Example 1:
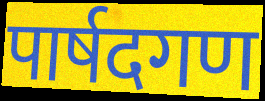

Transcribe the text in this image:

पार्षदगण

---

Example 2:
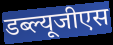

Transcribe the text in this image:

डब्ल्यूजीएस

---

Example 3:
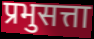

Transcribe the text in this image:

प्रभुसत्ता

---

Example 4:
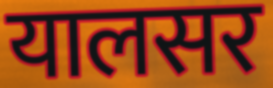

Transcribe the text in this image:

यालसर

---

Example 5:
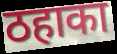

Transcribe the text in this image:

ठहाका